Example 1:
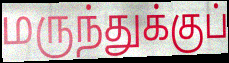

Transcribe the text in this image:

மருந்துக்குப்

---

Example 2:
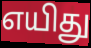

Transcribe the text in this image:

எயிது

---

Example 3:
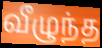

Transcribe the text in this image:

வீழுந்த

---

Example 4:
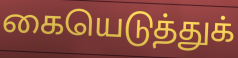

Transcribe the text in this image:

கையெடுத்துக்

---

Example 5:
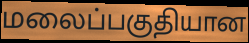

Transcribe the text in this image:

மலைப்பகுதியான